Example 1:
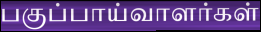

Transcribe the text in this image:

பகுப்பாய்வாளர்கள்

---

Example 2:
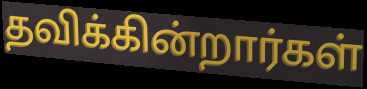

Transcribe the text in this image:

தவிக்கின்றார்கள்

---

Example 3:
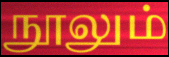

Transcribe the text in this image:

நூலும்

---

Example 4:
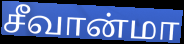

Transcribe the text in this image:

சீவான்மா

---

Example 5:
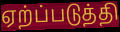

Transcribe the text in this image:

ஏற்ப்படுத்தி